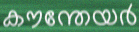
കൗന്തേയർ